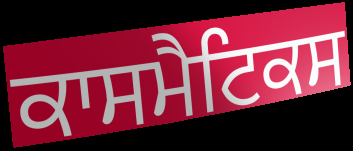
ਕਾਸਮੈਟਿਕਸ